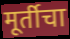
मूर्तीचा